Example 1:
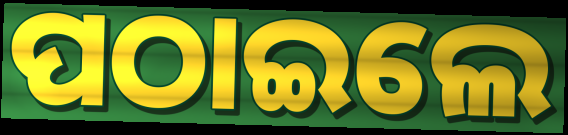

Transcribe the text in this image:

ପଠାଇଲେ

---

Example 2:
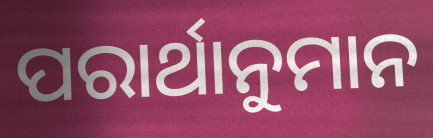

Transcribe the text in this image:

ପରାର୍ଥାନୁମାନ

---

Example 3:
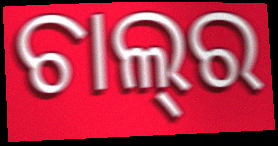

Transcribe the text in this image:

ଚାଲ୍‌ର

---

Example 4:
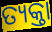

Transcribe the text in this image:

ତ୍ୟକ୍ତା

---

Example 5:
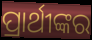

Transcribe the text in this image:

ପ୍ରାର୍ଥୀଙ୍କର